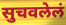
सुचवलेलं